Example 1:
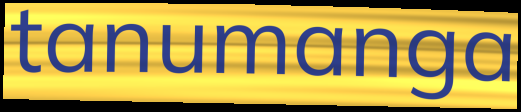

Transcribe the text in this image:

tanumanga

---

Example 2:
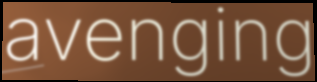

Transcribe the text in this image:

avenging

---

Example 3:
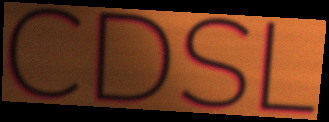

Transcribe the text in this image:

CDSL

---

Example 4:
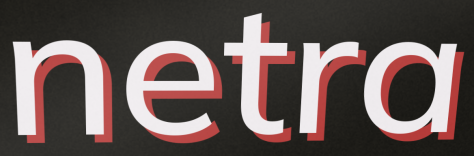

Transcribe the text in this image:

netra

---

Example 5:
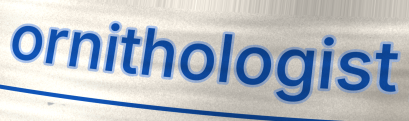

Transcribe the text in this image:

ornithologist